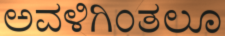
ಅವಳಿಗಿಂತಲೂ